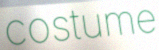
costume